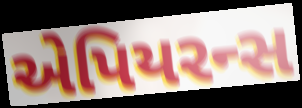
એપિયરન્સ